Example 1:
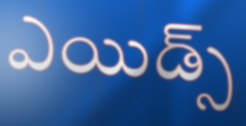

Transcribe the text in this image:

ఎయిడ్స్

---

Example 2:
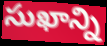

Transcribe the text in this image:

సుఖాన్ని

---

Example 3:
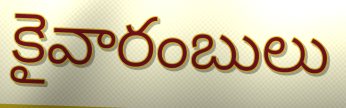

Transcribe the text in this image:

కైవారంబులు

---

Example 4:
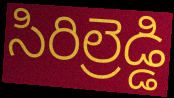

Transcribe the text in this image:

సిరిల్రెడ్డి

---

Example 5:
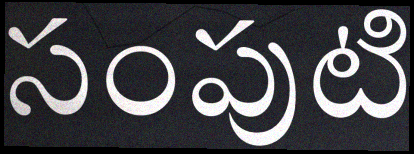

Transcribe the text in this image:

సంపుటి